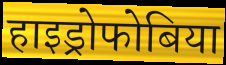
हाइड्रोफोबिया